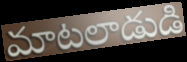
మాటలాడుడి